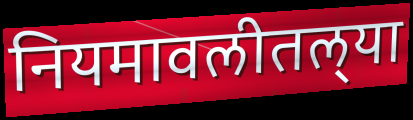
नियमावलीतल्या